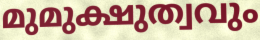
മുമുക്ഷുത്വവും